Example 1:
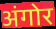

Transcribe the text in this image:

अंगोर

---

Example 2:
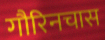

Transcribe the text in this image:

गौरिनचास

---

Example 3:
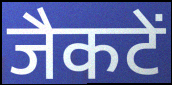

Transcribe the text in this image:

जैकटें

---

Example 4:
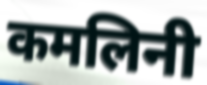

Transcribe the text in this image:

कमलिनी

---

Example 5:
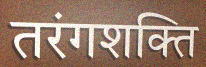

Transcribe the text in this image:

तरंगशक्ति